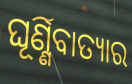
ଘୂର୍ଣ୍ଣିବାତ୍ୟାର